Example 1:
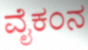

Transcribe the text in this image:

ವೈಕಂನ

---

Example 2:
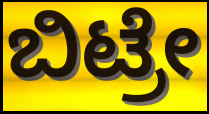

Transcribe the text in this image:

ಬಿಟ್ರೇ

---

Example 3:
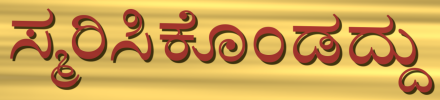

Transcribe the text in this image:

ಸ್ಮರಿಸಿಕೊಂಡದ್ದು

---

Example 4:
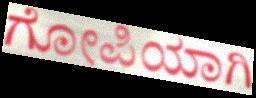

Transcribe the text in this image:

ಗೋಪಿಯಾಗಿ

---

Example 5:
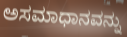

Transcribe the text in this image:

ಅಸಮಾಧಾನವನ್ನು